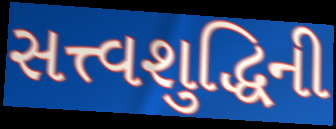
સત્ત્વશુદ્ધિની